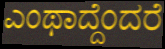
ಎಂಥಾದ್ದೆಂದರೆ